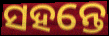
ସହନ୍ତେ